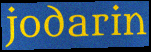
jodarin